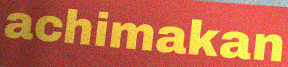
achimakan